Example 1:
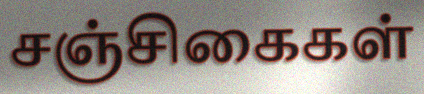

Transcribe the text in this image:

சஞ்சிகைகள்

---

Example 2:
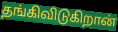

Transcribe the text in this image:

தங்கிவிடுகிறான்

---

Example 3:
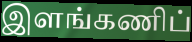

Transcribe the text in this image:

இளங்கணிப்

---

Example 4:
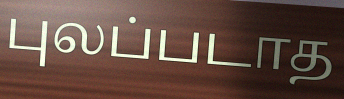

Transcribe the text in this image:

புலப்படாத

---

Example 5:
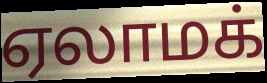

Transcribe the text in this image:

ஏலாமக்